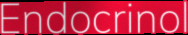
Endocrinol